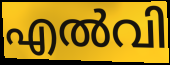
എൽവി